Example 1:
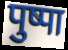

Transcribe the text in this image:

पुष्पा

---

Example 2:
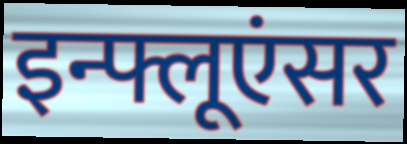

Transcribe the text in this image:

इन्फ्लूएंसर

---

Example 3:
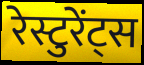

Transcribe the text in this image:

रेस्टुरेंट्स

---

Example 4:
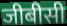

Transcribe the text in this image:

जीबीसी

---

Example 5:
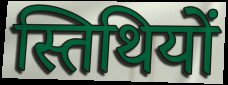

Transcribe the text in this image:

स्तिथियों